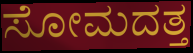
ಸೋಮದತ್ತ